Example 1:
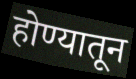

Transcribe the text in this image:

होण्यातून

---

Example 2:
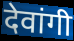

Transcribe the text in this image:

देवांगी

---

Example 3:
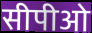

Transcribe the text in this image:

सीपीओ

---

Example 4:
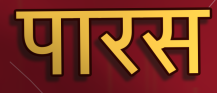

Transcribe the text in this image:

पारस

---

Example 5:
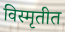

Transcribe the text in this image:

विस्मृतीत